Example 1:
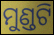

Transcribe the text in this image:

ମୁଣ୍ଡଟି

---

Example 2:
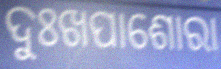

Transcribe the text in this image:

ଦୁଃଖପାଶୋରା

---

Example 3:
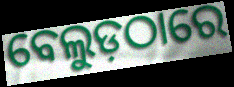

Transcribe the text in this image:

ବେଲୁଡ଼ଠାରେ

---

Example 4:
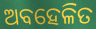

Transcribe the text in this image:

ଅବହେଳିତ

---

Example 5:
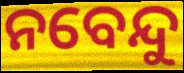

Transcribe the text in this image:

ନବେନ୍ଦୁ